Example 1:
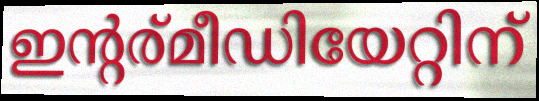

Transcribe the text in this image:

ഇന്റര്മീഡിയേറ്റിന്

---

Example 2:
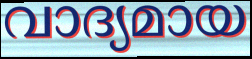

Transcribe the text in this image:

വാദ്യമായ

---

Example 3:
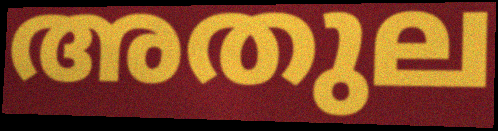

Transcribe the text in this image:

അതുല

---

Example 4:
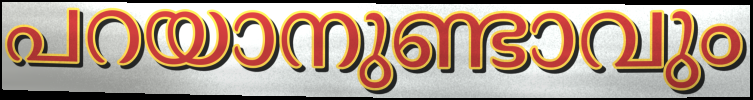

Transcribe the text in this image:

പറയാനുണ്ടാവും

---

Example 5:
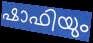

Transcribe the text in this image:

ഷാഫിയും